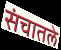
संचातले